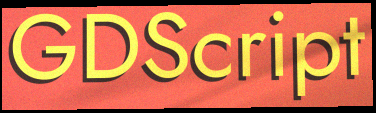
GDScript